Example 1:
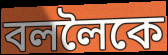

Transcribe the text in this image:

বললৈকে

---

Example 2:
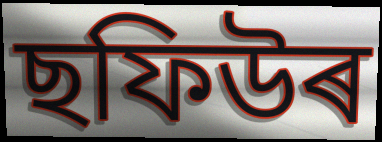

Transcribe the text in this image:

ছফিউৰ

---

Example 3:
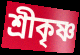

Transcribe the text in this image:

শ্ৰীকৃষ্ণ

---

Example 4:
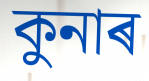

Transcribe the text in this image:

কুনাৰ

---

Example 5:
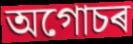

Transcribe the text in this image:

অগোচৰ